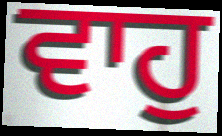
ਵਾਹੁ